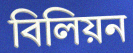
বিলিয়ন